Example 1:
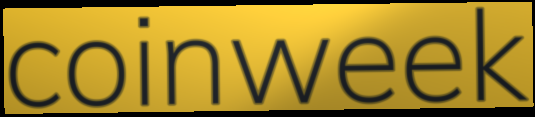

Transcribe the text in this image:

coinweek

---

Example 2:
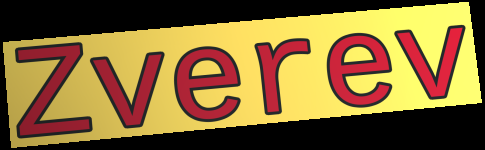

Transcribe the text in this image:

Zverev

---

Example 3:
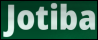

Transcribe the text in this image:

Jotiba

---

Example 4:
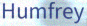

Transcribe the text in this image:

Humfrey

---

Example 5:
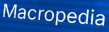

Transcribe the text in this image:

Macropedia